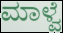
ಮಾಳ್ವೆ